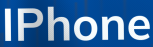
IPhone